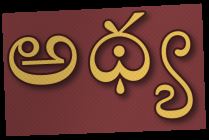
అథ్య